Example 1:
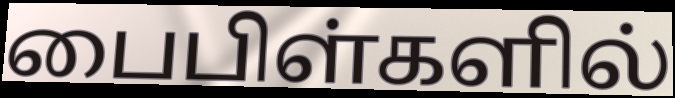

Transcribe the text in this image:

பைபிள்களில்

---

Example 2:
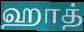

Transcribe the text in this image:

ஹாத்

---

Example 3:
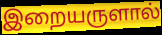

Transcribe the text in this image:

இறையருளால்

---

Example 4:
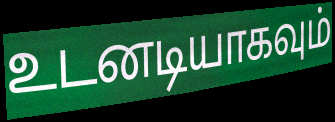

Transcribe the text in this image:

உடனடியாகவும்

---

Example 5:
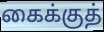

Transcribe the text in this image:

கைக்குத்